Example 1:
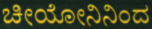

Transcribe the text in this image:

ಚೀಯೋನಿನಿಂದ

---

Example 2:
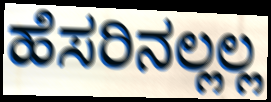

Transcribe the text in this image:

ಹೆಸರಿನಲ್ಲಲ್ಲ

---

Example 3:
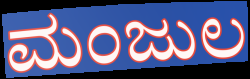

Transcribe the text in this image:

ಮಂಜುಲ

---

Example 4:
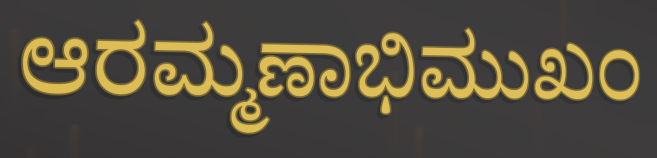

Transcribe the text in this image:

ಆರಮ್ಮಣಾಭಿಮುಖಂ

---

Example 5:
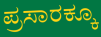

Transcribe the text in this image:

ಪ್ರಸಾರಕ್ಕೂ